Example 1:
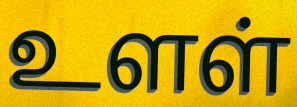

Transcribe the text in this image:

உளள்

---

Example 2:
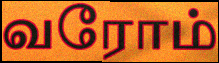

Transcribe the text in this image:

வரோம்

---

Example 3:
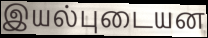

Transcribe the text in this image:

இயல்புடையன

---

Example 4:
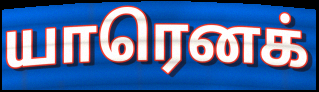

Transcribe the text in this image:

யாரெனக்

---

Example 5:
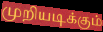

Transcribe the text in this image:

முறியடிக்கும்